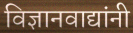
विज्ञानवाद्यांनी